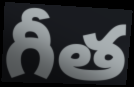
గీత